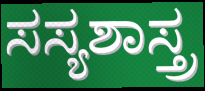
ಸಸ್ಯಶಾಸ್ತ್ರ